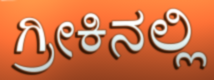
ಗ್ರೀಕಿನಲ್ಲಿ